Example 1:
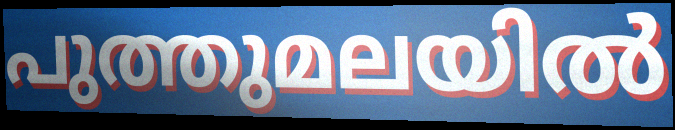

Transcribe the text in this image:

പുത്തുമലയിൽ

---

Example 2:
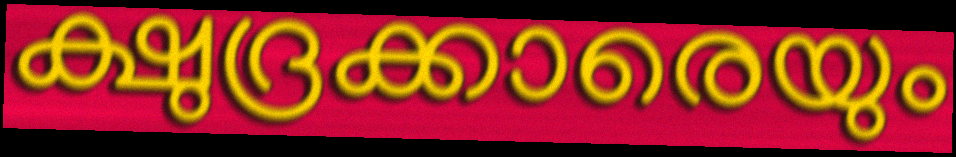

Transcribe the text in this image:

ക്ഷുദ്രക്കാരെയും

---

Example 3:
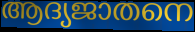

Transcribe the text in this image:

ആദ്യജാതനെ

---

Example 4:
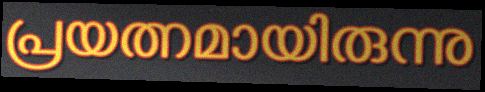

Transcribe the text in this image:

പ്രയത്നമായിരുന്നു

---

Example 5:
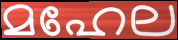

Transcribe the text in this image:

മഹേല